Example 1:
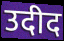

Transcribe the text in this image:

उदीद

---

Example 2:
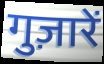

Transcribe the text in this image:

गुज़ारें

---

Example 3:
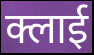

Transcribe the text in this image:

क्लाई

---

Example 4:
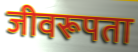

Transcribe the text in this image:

जीवरूपता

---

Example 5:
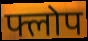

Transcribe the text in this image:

फ्लोप